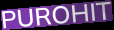
PUROHIT